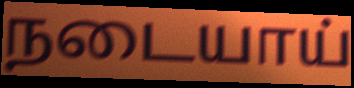
நடையாய்